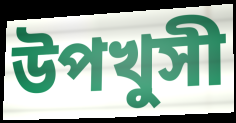
উপখুসী